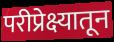
परीप्रेक्ष्यातून